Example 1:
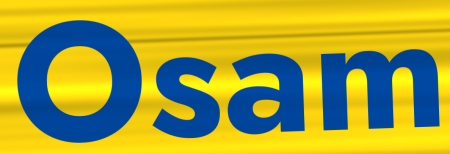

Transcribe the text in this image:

Osam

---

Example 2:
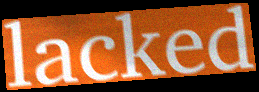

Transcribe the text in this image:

lacked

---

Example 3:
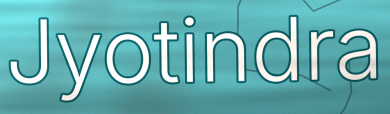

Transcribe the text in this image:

Jyotindra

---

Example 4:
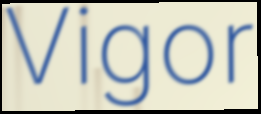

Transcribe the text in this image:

Vigor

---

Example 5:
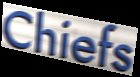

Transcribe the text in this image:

Chiefs